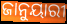
ଜାନୁୟାରୀ